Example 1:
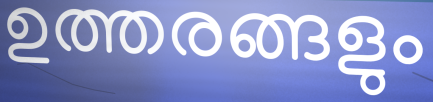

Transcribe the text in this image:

ഉത്തരങ്ങളും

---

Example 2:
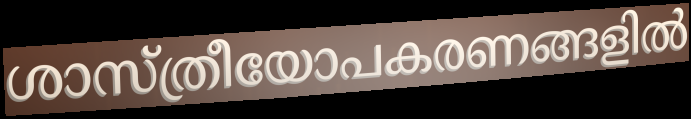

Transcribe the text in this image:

ശാസ്ത്രീയോപകരണങ്ങളിൽ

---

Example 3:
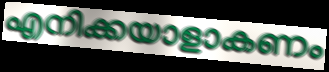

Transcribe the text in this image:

എനിക്കയാളാകണം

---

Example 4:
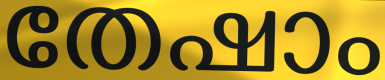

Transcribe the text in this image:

തേഷാം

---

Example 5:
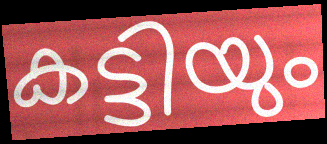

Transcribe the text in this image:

കട്ടിയും